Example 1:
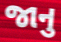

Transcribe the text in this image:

જાનુ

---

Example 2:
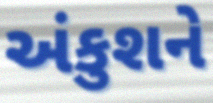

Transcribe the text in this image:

અંકુશને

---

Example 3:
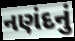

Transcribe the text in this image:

નણંદનું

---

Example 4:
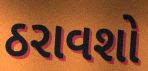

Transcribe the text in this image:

ઠરાવશો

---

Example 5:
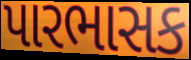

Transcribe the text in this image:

પારભાસક